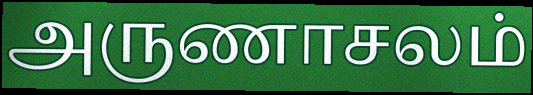
அருணாசலம்